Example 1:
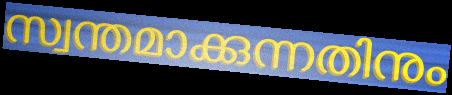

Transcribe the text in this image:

സ്വന്തമാക്കുന്നതിനും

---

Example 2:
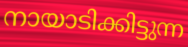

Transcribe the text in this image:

നായാടിക്കിട്ടുന്ന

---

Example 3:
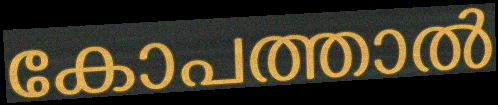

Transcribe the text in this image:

കോപത്താൽ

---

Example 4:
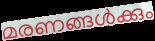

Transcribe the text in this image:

മരണങ്ങൾക്കും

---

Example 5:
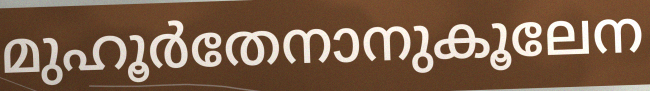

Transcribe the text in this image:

മുഹൂർതേനാനുകൂലേന